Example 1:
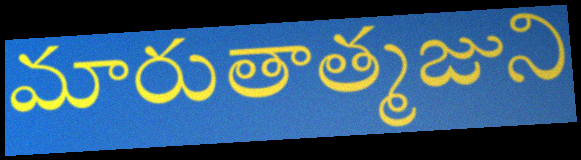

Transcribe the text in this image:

మారుతాత్మజుని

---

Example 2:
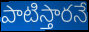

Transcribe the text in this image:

పాటిస్తారనే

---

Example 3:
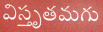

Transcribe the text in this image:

విస్తృతమగు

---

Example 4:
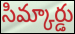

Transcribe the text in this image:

సిమ్కార్డు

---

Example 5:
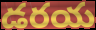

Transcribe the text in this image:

డరయ